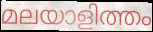
മലയാളിത്തം